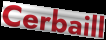
Cerbaill